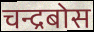
चन्द्रबोस